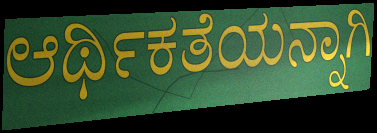
ಆರ್ಥಿಕತೆಯನ್ನಾಗಿ